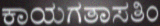
ಕಾಯಗತಾಸತಿಂ